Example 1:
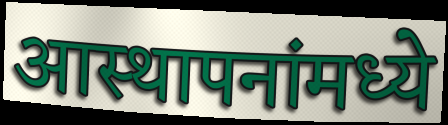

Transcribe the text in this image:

आस्थापनांमध्ये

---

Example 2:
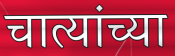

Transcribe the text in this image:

चात्यांच्या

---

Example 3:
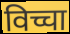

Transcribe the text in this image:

विच्चा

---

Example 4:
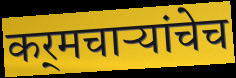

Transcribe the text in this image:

कर्मचाऱ्यांचेच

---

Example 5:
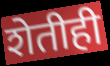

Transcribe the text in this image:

शेतीही